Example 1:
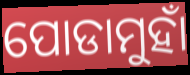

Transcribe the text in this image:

ପୋଡାମୁହାଁ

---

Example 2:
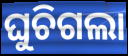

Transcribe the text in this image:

ଘୁଚିଗଲା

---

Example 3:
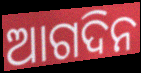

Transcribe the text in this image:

ଆଗଦିନ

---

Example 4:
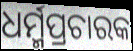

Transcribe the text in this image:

ଧର୍ମ୍ମପ୍ରଚାରକ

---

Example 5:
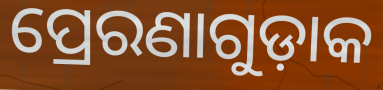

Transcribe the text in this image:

ପ୍ରେରଣାଗୁଡ଼ାକ